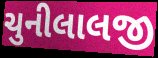
ચુનીલાલજી